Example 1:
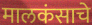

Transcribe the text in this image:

मालकंसाचे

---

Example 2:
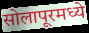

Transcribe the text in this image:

सोलापूरमध्ये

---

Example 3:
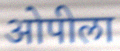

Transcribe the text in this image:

ओपीला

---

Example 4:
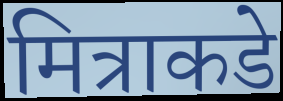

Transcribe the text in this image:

मित्राकडे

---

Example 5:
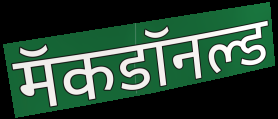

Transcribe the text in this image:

मॅकडॉनल्ड